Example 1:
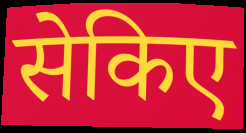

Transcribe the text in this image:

सेकिए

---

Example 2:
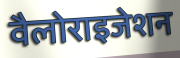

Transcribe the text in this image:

वैलोराइजेशन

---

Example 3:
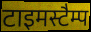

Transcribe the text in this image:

टाइमस्टैम्प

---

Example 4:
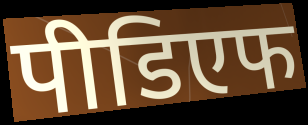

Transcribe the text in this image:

पीडिएफ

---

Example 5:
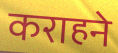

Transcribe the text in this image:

कराहने